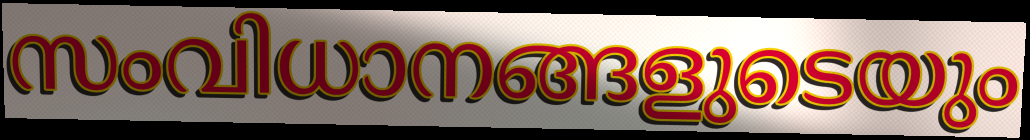
സംവിധാനങ്ങളുടെയും